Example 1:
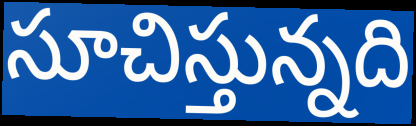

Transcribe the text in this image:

సూచిస్తున్నది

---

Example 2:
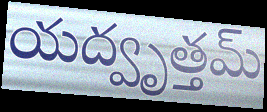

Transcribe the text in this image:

యద్వృత్తమ్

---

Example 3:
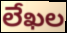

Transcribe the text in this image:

లేఖల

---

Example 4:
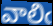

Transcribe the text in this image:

వాలిఁ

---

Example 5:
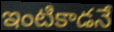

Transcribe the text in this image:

ఇంటికాడనే